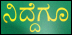
ನಿದ್ದೆಗೂ